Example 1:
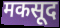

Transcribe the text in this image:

मकसूद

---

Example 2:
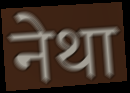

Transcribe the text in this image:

नेथा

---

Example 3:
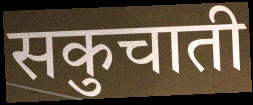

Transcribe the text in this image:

सकुचाती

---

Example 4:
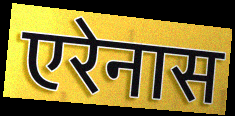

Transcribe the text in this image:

एरेनास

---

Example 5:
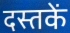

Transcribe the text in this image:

दस्तकें